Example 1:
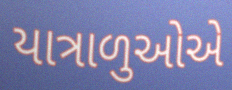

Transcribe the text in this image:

યાત્રાળુઓએ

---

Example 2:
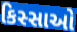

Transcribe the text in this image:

કિસ્સાઓ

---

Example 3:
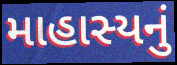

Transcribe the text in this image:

માહાસ્યનું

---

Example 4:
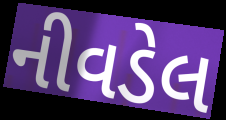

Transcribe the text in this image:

નીવડેલ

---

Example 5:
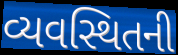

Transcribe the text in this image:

વ્યવસ્થિતની